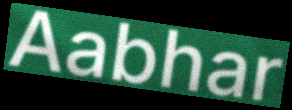
Aabhar